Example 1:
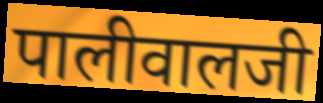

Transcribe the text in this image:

पालीवालजी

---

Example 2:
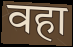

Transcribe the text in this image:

वहा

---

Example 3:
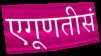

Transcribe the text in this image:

एगूणतीसं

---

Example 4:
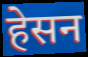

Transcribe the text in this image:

हेसन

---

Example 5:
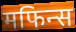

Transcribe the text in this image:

मफिन्स